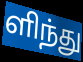
ளிந்து